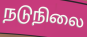
நடுநிலை